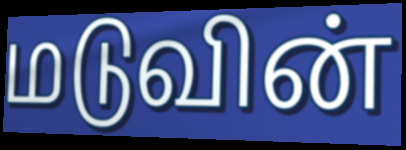
மடுவின்